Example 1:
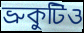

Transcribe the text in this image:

ভ্রুকুটিও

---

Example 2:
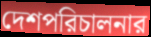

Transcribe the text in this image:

দেশপরিচালনার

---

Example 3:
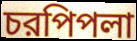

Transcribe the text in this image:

চরপিপলা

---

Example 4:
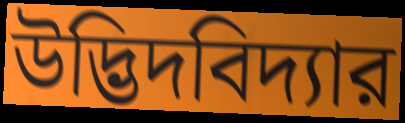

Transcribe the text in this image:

উদ্ভিদবিদ্যার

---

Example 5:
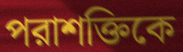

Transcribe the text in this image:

পরাশক্তিকে